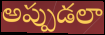
అప్పుడలా